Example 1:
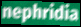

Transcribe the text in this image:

nephridia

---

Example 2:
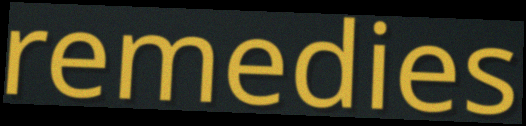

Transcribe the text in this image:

remedies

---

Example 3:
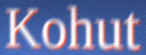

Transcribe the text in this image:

Kohut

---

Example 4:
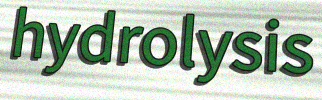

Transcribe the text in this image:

hydrolysis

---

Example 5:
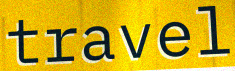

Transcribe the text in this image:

travel